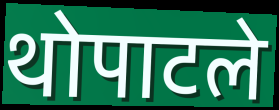
थोपाटले